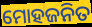
ମୋହଜନିତ